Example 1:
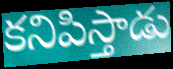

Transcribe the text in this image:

కనిపిస్తాడు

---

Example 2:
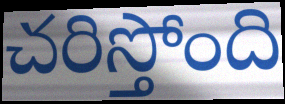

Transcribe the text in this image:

చరిస్తోంది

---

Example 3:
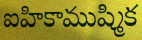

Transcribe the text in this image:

ఐహికాముష్మిక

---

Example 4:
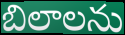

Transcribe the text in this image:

బిలాలను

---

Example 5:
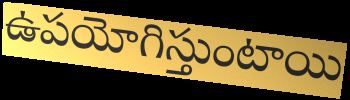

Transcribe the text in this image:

ఉపయోగిస్తుంటాయి